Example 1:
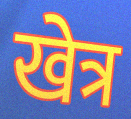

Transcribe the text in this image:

खेत्र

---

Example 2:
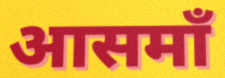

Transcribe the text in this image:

आसमाँ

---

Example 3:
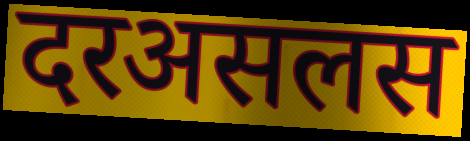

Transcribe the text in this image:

दरअसलस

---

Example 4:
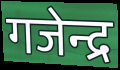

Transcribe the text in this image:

गजेन्द्र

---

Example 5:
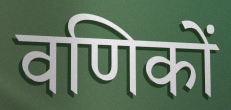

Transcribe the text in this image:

वणिकों